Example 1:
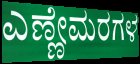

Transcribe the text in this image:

ಎಣ್ಣೇಮರಗಳ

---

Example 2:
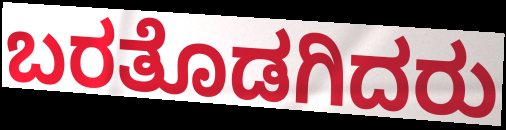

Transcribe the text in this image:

ಬರತೊಡಗಿದರು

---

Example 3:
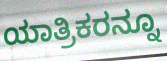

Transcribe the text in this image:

ಯಾತ್ರಿಕರನ್ನೂ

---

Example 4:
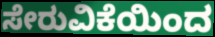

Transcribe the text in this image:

ಸೇರುವಿಕೆಯಿಂದ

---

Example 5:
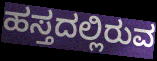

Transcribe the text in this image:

ಹಸ್ತದಲ್ಲಿರುವ